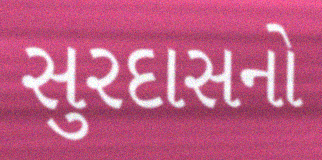
સુરદાસનો